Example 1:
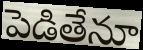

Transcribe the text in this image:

పెడితేనూ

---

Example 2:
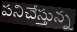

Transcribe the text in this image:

పనిచేస్తున్న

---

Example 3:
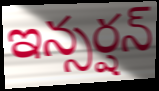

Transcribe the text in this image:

ఇన్సర్షన్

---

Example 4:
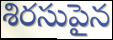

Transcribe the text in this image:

శిరసుపైన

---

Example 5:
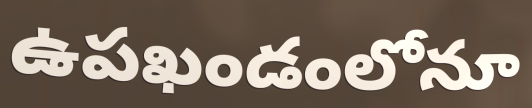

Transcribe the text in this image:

ఉపఖండంలోనూ